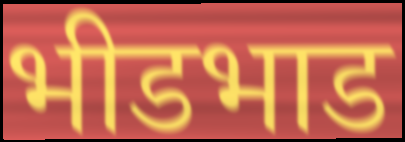
भीडभाड